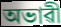
অভাৱী